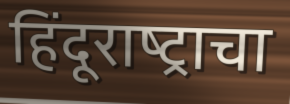
हिंदूराष्ट्राचा